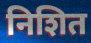
निशित